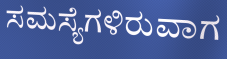
ಸಮಸ್ಯೆಗಳಿರುವಾಗ